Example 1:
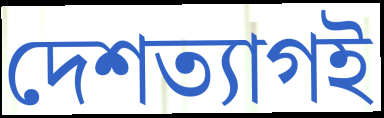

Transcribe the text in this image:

দেশত্যাগই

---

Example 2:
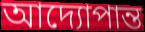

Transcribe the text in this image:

আদ্যোপান্ত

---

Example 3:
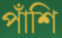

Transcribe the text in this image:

পাঁশি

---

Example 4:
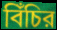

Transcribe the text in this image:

বিঁচির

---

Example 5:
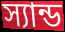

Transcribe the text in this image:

স্যান্ড